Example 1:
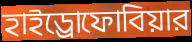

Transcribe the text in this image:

হাইড্রোফোবিয়ার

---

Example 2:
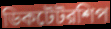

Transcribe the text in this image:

ডিকটেটরশিপ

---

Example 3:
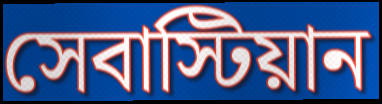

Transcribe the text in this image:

সেবাস্টিয়ান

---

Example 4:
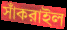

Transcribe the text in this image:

সাঁকরাইল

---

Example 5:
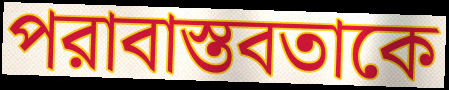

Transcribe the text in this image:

পরাবাস্তবতাকে